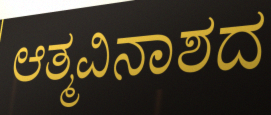
ಆತ್ಮವಿನಾಶದ